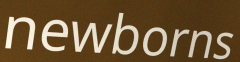
newborns